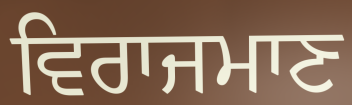
ਵਿਰਾਜਮਾਣ